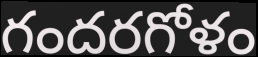
గందరగోళం